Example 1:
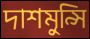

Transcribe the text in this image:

দাশমুন্সি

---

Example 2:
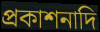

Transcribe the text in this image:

প্রকাশনাদি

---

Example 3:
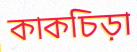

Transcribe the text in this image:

কাকচিড়া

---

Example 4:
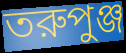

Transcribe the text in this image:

তরুপুঞ্জ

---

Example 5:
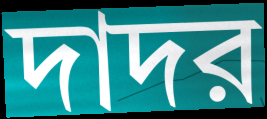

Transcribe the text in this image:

দাদর